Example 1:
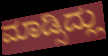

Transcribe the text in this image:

ಮಾಡ್ಸಿದ್ಲು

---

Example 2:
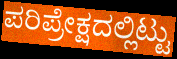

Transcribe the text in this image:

ಪರಿಪ್ರೇಕ್ಷದಲ್ಲಿಟ್ಟು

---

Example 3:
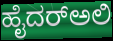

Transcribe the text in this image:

ಹೈದರ್‌ಅಲಿ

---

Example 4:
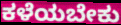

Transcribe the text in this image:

ಕಳೆಯಬೇಕು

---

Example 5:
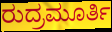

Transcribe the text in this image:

ರುದ್ರಮೂರ್ತಿ